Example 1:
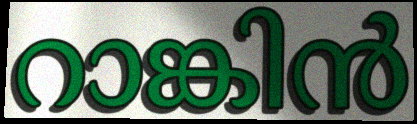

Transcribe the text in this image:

റാങ്കിൻ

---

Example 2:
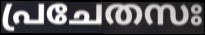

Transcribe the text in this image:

പ്രചേതസഃ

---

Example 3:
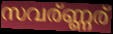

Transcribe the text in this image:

സവര്ണ്ണര്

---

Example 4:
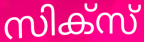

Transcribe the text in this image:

സിക്സ്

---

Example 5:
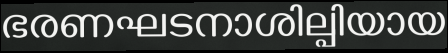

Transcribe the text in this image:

ഭരണഘടനാശില്പിയായ